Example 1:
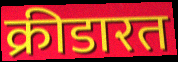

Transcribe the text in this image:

क्रीडारत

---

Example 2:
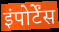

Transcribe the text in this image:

इंपोर्टेंस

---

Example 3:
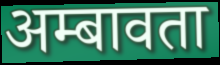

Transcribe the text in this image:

अम्बावता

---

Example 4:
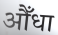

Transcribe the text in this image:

औँधा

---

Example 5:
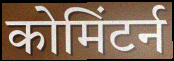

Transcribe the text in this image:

कोमिंटर्न